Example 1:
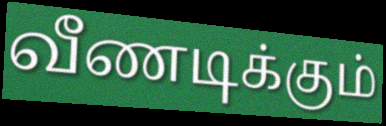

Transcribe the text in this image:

வீணடிக்கும்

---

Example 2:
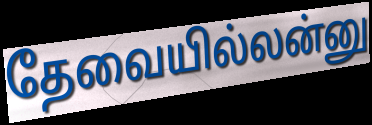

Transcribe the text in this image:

தேவையில்லன்னு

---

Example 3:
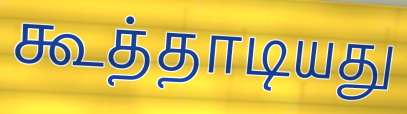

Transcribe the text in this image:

கூத்தாடியது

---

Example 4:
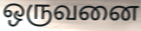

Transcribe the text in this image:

ஒருவனை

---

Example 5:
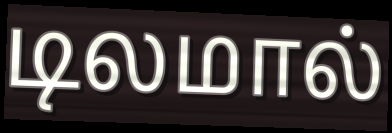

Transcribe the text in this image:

டிலமால்